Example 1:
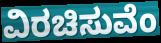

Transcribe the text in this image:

ವಿರಚಿಸುವೆಂ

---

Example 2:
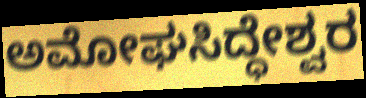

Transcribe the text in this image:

ಅಮೋಘಸಿದ್ಧೇಶ್ವರ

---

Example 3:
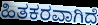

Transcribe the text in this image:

ಹಿತಕರವಾಗಿದೆ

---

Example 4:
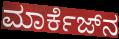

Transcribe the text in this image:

ಮಾರ್ಕೆಜ್‌ನ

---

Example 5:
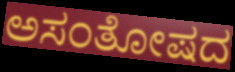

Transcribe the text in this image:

ಅಸಂತೋಷದ